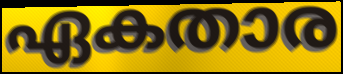
ഏകതാര